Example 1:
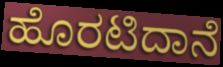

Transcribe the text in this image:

ಹೊರಟಿದಾನೆ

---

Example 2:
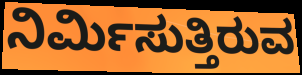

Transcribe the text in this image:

ನಿರ್ಮಿಸುತ್ತಿರುವ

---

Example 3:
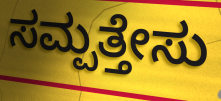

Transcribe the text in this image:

ಸಮ್ಪತ್ತೇಸು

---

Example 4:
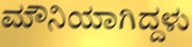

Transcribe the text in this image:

ಮೌನಿಯಾಗಿದ್ದಳು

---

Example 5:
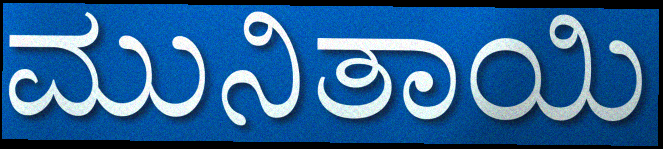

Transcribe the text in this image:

ಮುನಿತಾಯಿ